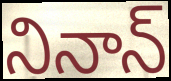
నినాన్